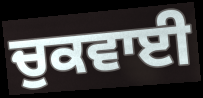
ਚੁਕਵਾਈ